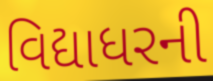
વિદ્યાધરની